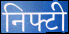
निफ्टी